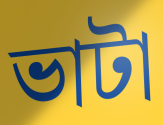
ভাটা